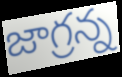
జాగ్రన్న